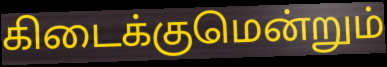
கிடைக்குமென்றும்